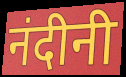
नंदीनी